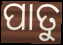
ପାତୁ